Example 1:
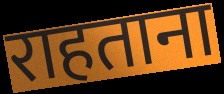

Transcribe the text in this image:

राहताना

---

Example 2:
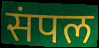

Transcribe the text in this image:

संपल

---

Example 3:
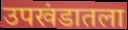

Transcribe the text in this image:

उपखंडातला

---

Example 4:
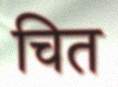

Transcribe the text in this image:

चित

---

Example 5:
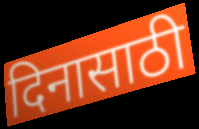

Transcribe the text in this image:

दिनासाठी